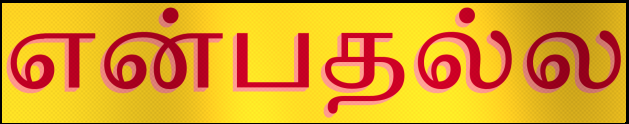
என்பதல்ல